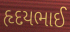
હૃદયભાઈ